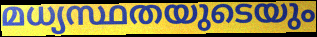
മധ്യസ്ഥതയുടെയും